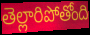
తెల్లారిపోతోంది